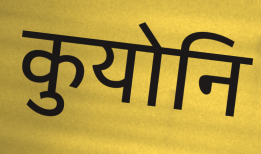
कुयोनि